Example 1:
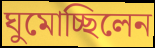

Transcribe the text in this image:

ঘুমোচ্ছিলেন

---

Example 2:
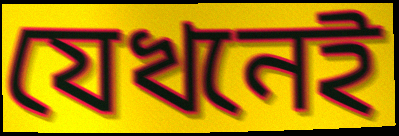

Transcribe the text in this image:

যেখনেই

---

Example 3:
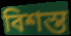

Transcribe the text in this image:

বিশস্ত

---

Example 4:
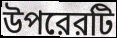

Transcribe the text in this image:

উপরেরটি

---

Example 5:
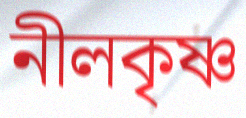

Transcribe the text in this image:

নীলকৃষ্ণ